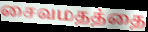
சைவமதத்தை